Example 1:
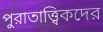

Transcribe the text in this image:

পুরাতাত্ত্বিকদের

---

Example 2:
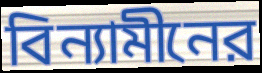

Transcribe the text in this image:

বিন্যামীনের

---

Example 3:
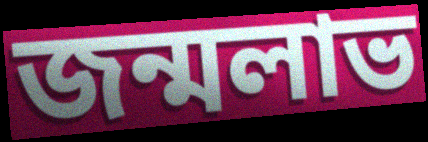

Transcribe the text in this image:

জন্মলাভ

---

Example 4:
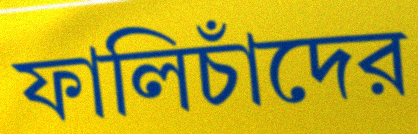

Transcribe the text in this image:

ফালিচাঁদের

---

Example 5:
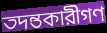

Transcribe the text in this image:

তদন্তকারীগণ